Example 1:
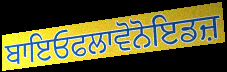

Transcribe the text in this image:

ਬਾਇਓਫਲਾਵੋਨੋਇਡਜ਼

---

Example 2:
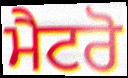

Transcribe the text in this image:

ਮੈਟਰੋ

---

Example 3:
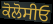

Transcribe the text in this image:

ਕੋਲੋਸੀਓ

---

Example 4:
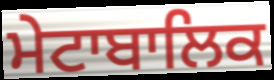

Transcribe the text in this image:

ਮੇਟਾਬਾਲਿਕ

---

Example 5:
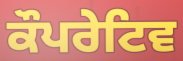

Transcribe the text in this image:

ਕੌਪਰੇਟਿਵ